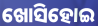
ଖୋସିହୋଇ